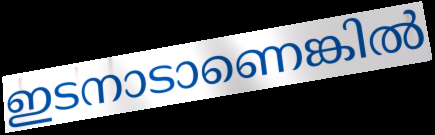
ഇടനാടാണെങ്കിൽ